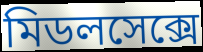
মিডলসেক্সে